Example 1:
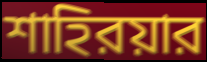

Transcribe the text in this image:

শাহিরয়ার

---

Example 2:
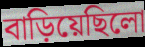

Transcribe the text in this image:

বাড়িয়েছিলো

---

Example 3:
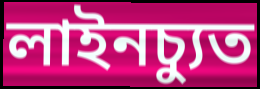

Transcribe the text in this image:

লাইনচ্যুত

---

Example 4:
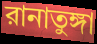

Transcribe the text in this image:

রানাতুঙ্গা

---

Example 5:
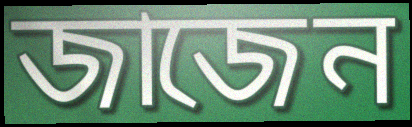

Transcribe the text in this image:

জাজেন